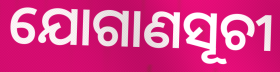
ଯୋଗାଣସୂଚୀ